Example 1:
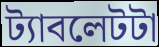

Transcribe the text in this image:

ট্যাবলেটটা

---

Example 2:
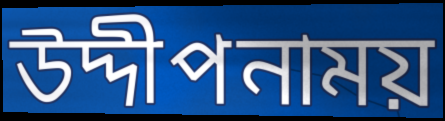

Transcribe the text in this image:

উদ্দীপনাময়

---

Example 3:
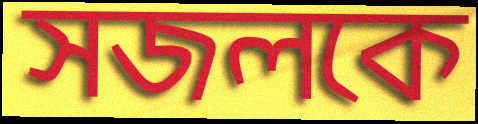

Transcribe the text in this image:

সজলকে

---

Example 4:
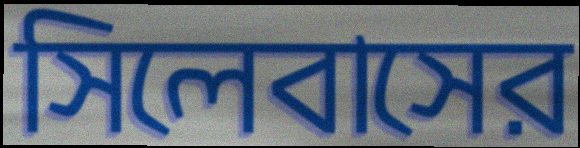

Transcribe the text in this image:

সিলেবাসের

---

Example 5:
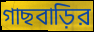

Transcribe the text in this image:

গাছবাড়ির